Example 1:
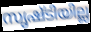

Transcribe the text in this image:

സൃഷ്ടിയില്ല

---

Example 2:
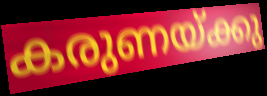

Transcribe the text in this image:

കരുണയ്ക്കു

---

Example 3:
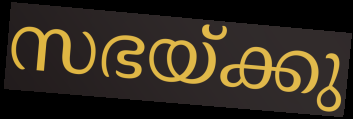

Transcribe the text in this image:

സഭയ്ക്കു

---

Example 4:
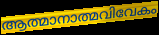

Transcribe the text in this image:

ആത്മാനാത്മവിവേകം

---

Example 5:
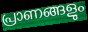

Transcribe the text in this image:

പ്രാണങ്ങളും